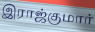
இராஜ்குமார்